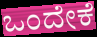
ಒಂದೇಕೆ